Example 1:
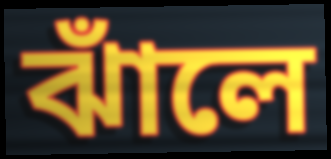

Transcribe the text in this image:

ঝাঁলে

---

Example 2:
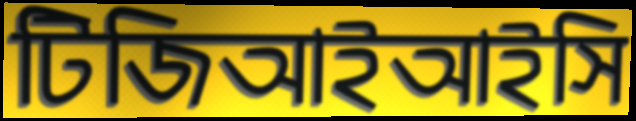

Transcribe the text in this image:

টিজিআইআইসি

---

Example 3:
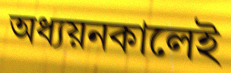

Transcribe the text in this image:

অধ্যয়নকালেই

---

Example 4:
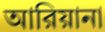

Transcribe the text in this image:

আরিয়ানা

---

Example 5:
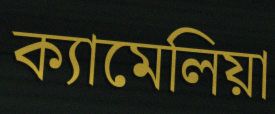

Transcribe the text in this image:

ক্যামেলিয়া